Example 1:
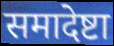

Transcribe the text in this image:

समादेष्टा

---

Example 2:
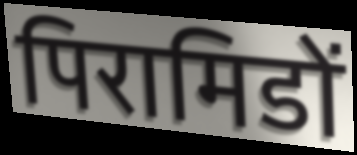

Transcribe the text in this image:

पिरामिडों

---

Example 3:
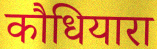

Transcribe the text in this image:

कौधियारा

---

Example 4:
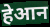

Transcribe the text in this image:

हेआन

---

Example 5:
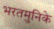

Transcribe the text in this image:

भरतमुनिके